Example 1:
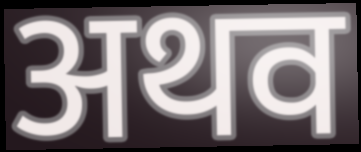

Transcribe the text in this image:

अथव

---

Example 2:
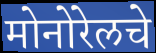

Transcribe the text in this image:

मोनोरेलचे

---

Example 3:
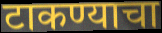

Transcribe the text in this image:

टाकण्याचा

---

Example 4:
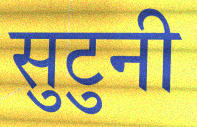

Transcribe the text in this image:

सुटुनी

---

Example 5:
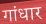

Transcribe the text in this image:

गांधार